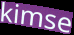
kimse